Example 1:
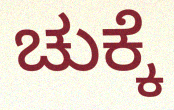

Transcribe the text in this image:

ಚುಕ್ಕೆ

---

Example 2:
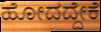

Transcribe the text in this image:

ಹೋದದ್ದೇಕೆ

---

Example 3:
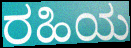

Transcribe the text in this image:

ರಹಿಯ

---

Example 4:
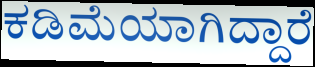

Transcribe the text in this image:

ಕಡಿಮೆಯಾಗಿದ್ದಾರೆ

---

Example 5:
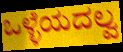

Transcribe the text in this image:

ಒಳ್ಳೆಯದಲ್ವ